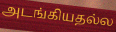
அடங்கியதல்ல